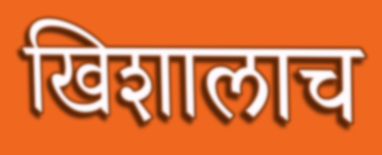
खिशालाच